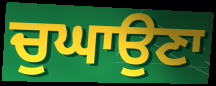
ਚੁਘਾਉਣਾ